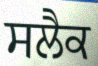
ਸਲੈਕ